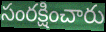
సంరక్షించారు